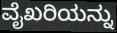
ವೈಖರಿಯನ್ನು